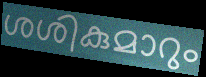
ശശികുമാറും